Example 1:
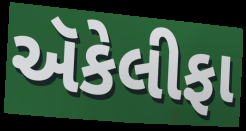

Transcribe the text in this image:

ઍકેલીફા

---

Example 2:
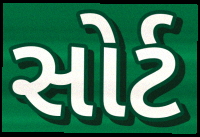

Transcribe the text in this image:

સોર્ટ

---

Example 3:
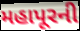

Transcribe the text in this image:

મહાપૂરની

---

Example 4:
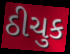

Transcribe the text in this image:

ઠીચુક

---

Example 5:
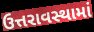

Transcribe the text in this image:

ઉત્તરાવસ્થામાં